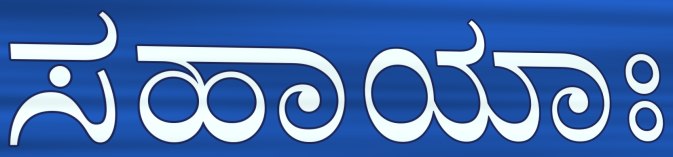
ಸಹಾಯಾಃ